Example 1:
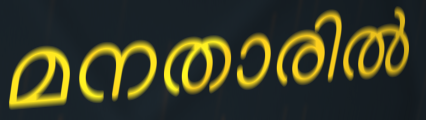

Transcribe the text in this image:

മനതാരിൽ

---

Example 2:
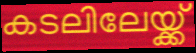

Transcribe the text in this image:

കടലിലേയ്ക്ക്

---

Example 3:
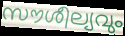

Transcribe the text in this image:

സൗശീല്യവും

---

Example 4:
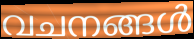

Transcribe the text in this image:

വചനങ്ങൾ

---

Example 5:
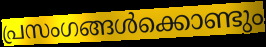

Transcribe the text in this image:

പ്രസംഗങ്ങൾക്കൊണ്ടും